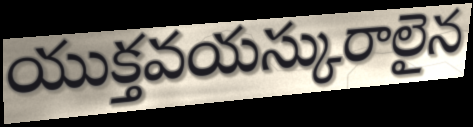
యుక్తవయస్కురాలైన